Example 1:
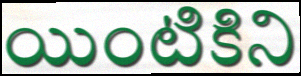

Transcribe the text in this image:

యింటికిని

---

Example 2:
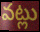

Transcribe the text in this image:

వట్లు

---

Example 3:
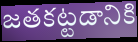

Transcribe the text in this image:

జతకట్టడానికి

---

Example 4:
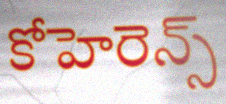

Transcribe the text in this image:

కోహెరెన్స్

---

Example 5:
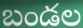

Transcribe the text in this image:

బండల